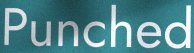
Punched